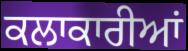
ਕਲਾਕਾਰੀਆਂ